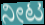
ನೀಟ